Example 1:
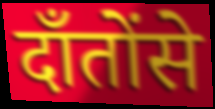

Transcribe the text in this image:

दाँतोंसे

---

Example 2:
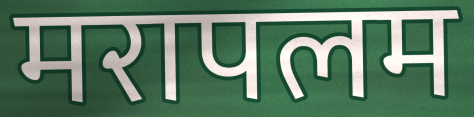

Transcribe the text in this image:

मरापलम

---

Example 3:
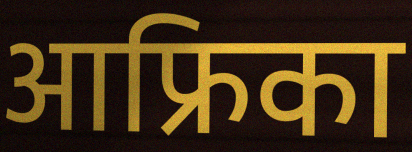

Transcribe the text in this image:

आफ्रिका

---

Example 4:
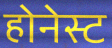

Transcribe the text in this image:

होनेस्ट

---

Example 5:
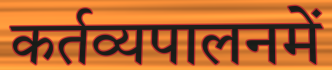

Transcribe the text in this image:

कर्तव्यपालनमें